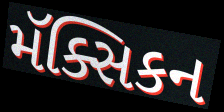
મૅક્સિકન